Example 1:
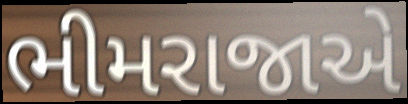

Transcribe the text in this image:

ભીમરાજાએ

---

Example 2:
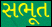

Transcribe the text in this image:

સભૂત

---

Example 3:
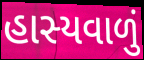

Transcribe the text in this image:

હાસ્યવાળું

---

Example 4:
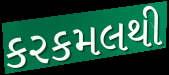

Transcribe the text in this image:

કરકમલથી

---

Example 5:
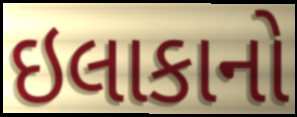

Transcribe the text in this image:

ઇલાકાનો